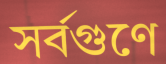
সর্বগুণে